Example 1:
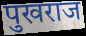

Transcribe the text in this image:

पुखराज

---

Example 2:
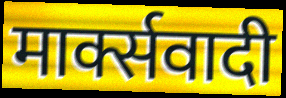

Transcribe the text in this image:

मार्क्सवादी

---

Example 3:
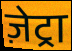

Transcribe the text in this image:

ज़ेट्रा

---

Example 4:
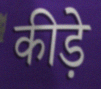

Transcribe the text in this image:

कीड़े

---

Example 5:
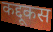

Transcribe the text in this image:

कद्दूकस